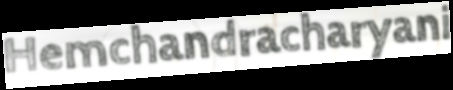
Hemchandracharyani